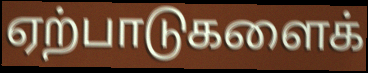
ஏற்பாடுகளைக்